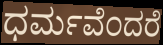
ಧರ್ಮವೆಂದರೆ